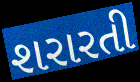
શરારતી